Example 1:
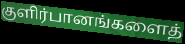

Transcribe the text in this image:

குளிர்பானங்களைத்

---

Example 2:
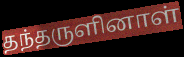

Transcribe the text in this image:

தந்தருளினாள்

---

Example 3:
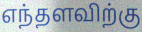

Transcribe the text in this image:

எந்தளவிற்கு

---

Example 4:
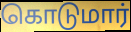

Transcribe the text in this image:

கொடுமார்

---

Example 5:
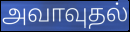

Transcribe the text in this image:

அவாவுதல்